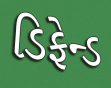
ડિફેન્ડ